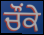
ਚੌਂਕੇ